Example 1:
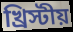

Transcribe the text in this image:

খ্রিস্টীয়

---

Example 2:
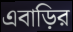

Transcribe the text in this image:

এবাড়ির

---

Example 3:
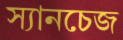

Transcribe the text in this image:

স্যানচেজ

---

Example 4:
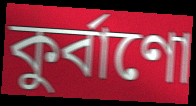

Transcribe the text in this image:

কুর্বাণো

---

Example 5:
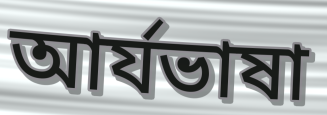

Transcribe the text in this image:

আর্যভাষা